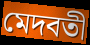
মেদবতী